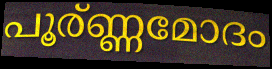
പൂര്ണ്ണമോദം